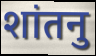
शांतनु